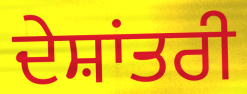
ਦੇਸ਼ਾਂਤਰੀ